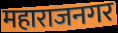
महाराजनगर